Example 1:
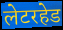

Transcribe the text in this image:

लेटरहेड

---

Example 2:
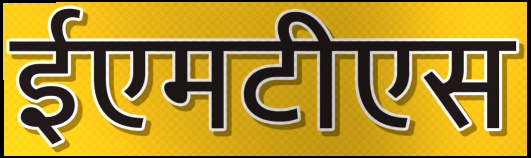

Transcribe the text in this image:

ईएमटीएस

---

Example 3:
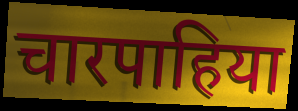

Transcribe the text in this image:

चारपाहिया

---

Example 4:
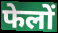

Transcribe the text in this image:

फेलों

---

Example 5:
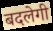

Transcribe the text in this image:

बदलेगी